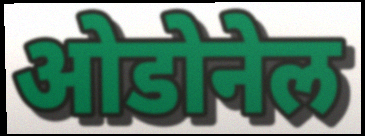
ओडोनेल